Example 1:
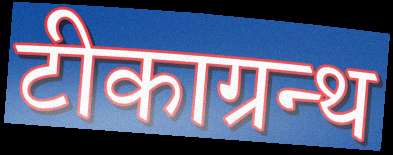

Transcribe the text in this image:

टीकाग्रन्थ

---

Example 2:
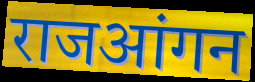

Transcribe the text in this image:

राजआंगन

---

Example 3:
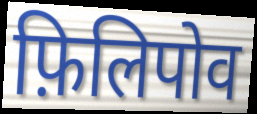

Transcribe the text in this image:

फ़िलिपोव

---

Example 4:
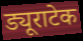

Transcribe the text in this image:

ड्यूराटेक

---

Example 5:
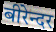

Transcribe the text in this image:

बीरेन्दर